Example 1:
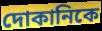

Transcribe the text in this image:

দোকানিকে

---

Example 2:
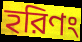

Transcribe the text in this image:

হরিণং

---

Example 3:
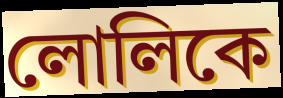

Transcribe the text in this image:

লোলিকে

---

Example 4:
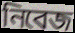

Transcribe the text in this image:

নিবেজ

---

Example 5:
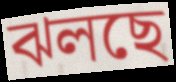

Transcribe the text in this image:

ঝলছে